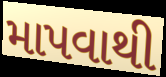
માપવાથી